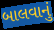
બાલવાનું